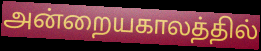
அன்றையகாலத்தில்